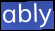
ably